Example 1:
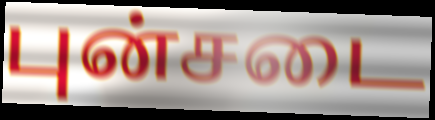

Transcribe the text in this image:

புன்சடை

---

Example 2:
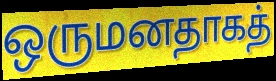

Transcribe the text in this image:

ஒருமனதாகத்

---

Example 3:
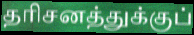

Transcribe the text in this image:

தரிசனத்துக்குப்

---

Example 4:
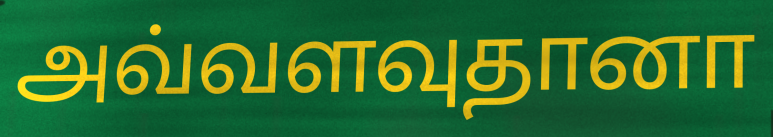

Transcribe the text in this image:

அவ்வளவுதானா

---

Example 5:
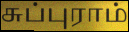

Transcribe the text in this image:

சுப்புராம்